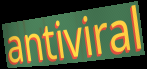
antiviral